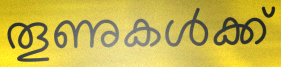
തൂണുകൾക്ക്